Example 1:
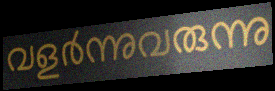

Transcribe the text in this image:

വളർന്നുവരുന്നു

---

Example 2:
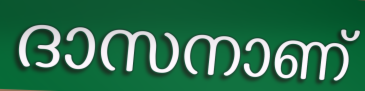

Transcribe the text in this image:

ദാസനാണ്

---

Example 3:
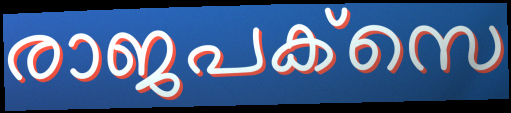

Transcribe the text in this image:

രാജപക്‌സെ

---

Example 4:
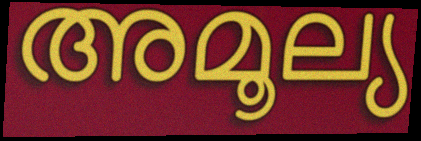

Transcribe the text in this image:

അമൂല്യ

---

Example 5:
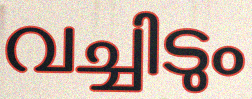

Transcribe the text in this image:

വച്ചിടും